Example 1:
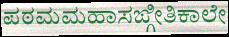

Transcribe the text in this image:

ಪಠಮಮಹಾಸಙ್ಗೀತಿಕಾಲೇ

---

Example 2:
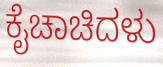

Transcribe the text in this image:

ಕೈಚಾಚಿದಳು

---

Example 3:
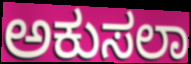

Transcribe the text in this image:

ಅಕುಸಲಾ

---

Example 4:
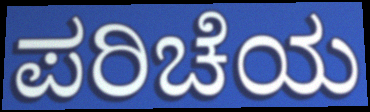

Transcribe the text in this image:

ಪರಿಚೆಯ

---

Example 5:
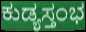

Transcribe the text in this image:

ಕುಡ್ಯಸ್ತಂಭ